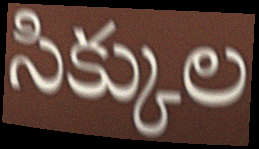
సిక్కుల